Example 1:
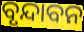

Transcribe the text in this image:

ବୃନ୍ଦାବନ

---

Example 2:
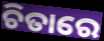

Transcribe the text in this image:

ଚିତାରେ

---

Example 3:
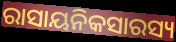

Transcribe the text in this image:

ରାସାୟନିକସାରସ୍ୟ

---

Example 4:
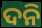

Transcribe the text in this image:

ଦନି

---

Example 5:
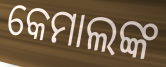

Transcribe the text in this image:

କେମାଲଙ୍କ